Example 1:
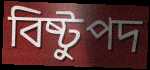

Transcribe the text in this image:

বিষ্টুপদ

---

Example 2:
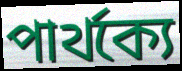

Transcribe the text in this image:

পার্থক্যে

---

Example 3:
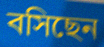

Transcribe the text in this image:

বসিছেন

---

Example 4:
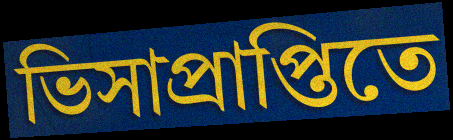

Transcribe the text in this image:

ভিসাপ্রাপ্তিতে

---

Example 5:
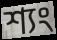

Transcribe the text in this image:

শ্যং